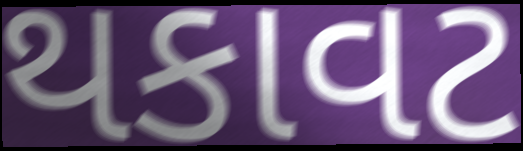
થકાવટ